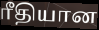
ரீதியான